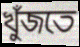
খুঁজতে